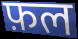
फ़ल